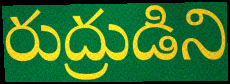
రుద్రుడిని